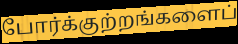
போர்க்குற்றங்களைப்